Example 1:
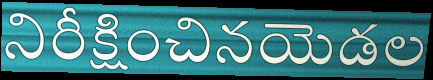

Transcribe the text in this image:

నిరీక్షించినయెడల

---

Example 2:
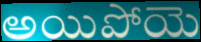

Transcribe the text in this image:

అయిపోయె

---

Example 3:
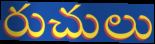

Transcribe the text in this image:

రుచులు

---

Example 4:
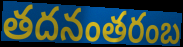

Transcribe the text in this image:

తదనంతరంబ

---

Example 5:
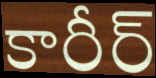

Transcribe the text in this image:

కారీర్